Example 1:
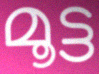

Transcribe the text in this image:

മൂട്ട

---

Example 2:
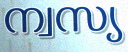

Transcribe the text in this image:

ന്വസ്യ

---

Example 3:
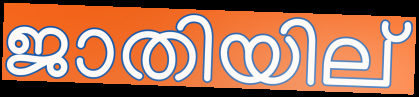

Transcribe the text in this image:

ജാതിയില്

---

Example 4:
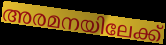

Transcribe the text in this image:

അരമനയിലേക്ക്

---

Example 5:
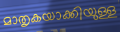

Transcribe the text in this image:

മാതൃകയാക്കിയുള്ള